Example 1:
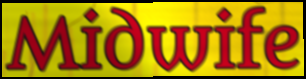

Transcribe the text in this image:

Midwife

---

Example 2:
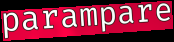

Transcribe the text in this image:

parampare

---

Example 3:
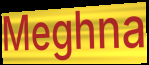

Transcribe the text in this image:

Meghna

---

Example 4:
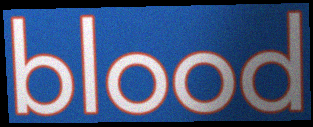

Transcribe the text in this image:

blood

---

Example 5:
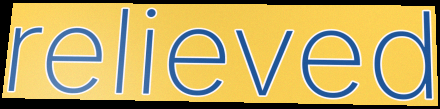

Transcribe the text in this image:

relieved